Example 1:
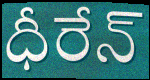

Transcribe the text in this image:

ధీరేన్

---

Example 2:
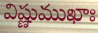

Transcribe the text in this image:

విష్ణుముఖాః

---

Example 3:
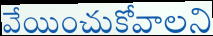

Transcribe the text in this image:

వేయించుకోవాలని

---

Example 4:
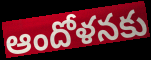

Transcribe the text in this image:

ఆందోళనకు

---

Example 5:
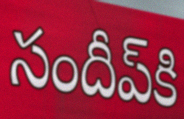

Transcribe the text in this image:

సందీప్‌కి